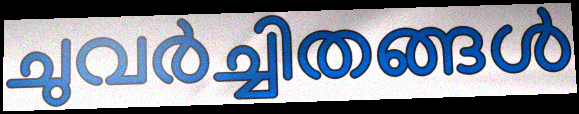
ചുവർച്ചിതങ്ങൾ